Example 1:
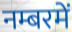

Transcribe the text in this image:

नम्बरमें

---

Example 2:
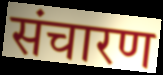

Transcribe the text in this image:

संचारण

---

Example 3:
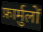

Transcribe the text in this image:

फ़ार्मुलों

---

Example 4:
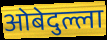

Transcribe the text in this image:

ओबेदुल्ला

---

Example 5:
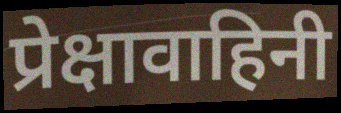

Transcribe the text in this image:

प्रेक्षावाहिनी